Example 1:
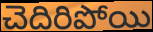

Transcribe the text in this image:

చెదిరిపోయి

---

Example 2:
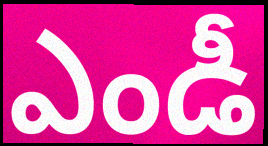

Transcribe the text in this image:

ఎండీ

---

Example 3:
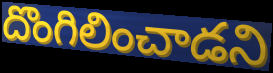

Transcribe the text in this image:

దొంగిలించాడని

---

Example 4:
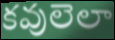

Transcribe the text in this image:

కవులెలా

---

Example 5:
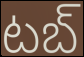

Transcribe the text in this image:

టబ్